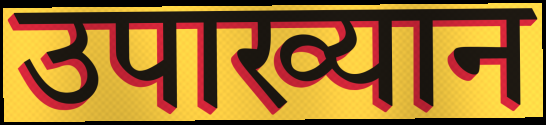
उपाख्यान